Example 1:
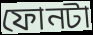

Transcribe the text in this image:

ফোনটা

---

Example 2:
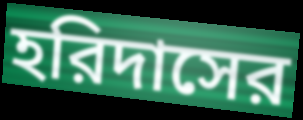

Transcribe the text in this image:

হরিদাসের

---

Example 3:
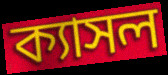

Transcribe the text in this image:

ক্যাসল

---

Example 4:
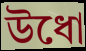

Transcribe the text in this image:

উধো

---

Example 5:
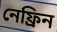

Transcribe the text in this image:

নেফ্রিন